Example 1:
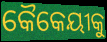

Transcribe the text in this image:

କୈକେୟୀକୁ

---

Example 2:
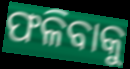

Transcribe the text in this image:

ଫଳିବାକୁ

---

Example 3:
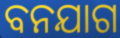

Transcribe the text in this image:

ବନଯାଗ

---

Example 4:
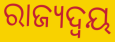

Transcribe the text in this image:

ରାଜ୍ୟଦ୍ୱୟ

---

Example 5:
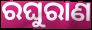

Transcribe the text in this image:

ରଘୁରାଣ